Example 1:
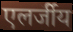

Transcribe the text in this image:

एलर्जीय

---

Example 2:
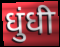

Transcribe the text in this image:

धुंधी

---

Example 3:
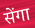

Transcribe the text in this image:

सेंगा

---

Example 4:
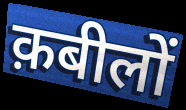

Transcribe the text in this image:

क़बीलों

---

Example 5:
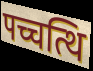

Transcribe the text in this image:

पच्चत्थि